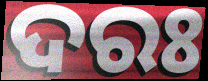
ଦରଃ